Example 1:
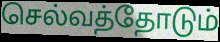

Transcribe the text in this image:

செல்வத்தோடும்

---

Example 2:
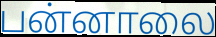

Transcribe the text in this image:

பன்னாலை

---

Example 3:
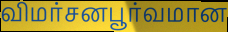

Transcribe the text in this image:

விமர்சனபூர்வமான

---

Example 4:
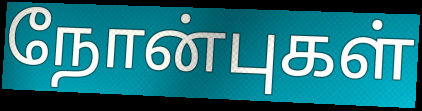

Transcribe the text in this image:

நோன்புகள்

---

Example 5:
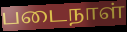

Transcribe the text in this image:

படைநாள்